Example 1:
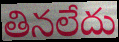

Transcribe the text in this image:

తినలేదు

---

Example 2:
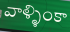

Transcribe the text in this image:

వాళ్ళింకా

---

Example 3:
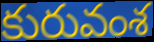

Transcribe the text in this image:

కురువంశ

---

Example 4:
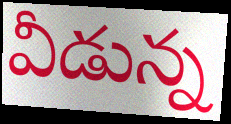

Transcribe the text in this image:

వీడున్న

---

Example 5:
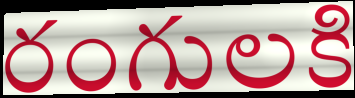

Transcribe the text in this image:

రంగులకి